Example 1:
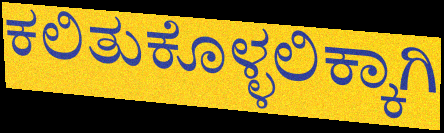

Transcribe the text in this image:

ಕಲಿತುಕೊಳ್ಳಲಿಕ್ಕಾಗಿ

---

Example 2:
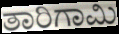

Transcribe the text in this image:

ತಾರಿಗಾಮಿ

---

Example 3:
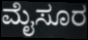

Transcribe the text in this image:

ಮೈಸೂರ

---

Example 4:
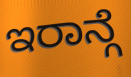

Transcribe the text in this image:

ಇರಾನ್ಗೆ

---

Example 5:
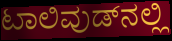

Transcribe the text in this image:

ಟಾಲಿವುಡ್‌ನಲ್ಲಿ